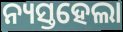
ନ୍ୟସ୍ତହେଲା